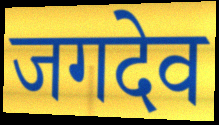
जगदेव